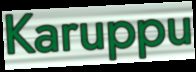
Karuppu